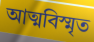
আত্মবিস্মৃত